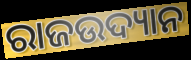
ରାଜଉଦ୍ୟାନ